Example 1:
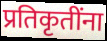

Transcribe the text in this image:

प्रतिकृतींना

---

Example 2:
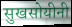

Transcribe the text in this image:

सुखसोयीनी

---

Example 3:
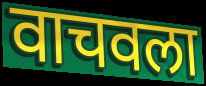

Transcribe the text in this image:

वाचवला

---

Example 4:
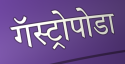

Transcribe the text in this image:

गॅस्ट्रोपोडा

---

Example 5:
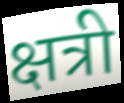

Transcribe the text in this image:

क्षत्री